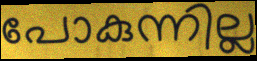
പോകുന്നില്ല